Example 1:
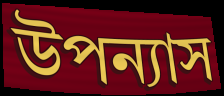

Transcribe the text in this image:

উপন্যাস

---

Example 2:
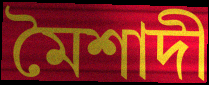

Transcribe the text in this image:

মৈশাদী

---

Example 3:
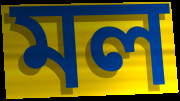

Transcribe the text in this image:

মল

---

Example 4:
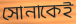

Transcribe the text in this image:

সোনাকেই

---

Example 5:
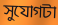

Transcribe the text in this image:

সুযোগটা